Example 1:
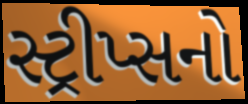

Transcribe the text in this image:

સ્ટ્રીપ્સનો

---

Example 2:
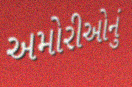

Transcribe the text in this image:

અમોરીઓનું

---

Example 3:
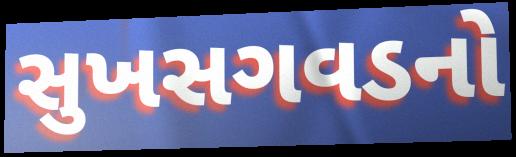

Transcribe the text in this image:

સુખસગવડનો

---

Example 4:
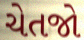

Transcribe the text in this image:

ચેતજો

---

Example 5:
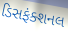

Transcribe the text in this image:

ડિસફંક્શનલ